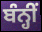
ਬੰਨ੍ਹੀਂ